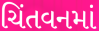
ચિંતવનમાં